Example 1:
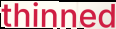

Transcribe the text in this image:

thinned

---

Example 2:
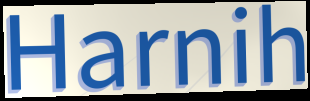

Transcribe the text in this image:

Harnih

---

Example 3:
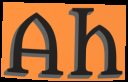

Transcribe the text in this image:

Ah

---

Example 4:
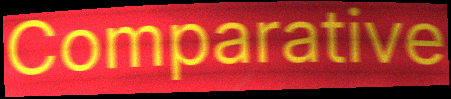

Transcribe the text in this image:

Comparative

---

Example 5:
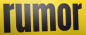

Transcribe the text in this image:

rumor